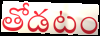
తోడటం